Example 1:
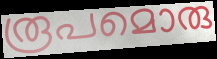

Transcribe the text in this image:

രൂപമൊരു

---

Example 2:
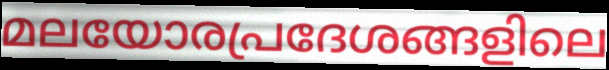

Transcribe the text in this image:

മലയോരപ്രദേശങ്ങളിലെ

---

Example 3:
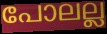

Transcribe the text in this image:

പോലല്ല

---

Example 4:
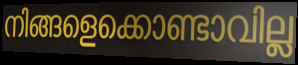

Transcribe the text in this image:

നിങ്ങളെക്കൊണ്ടാവില്ല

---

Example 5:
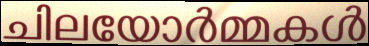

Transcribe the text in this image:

ചിലയോർമ്മകൾ